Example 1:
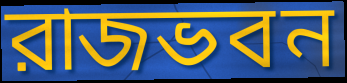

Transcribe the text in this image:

রাজভবন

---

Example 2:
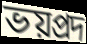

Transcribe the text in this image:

ভয়প্রদ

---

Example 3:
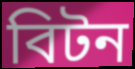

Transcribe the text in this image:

বিটন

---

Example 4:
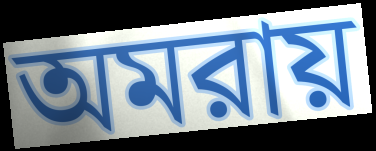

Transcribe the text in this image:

অমরায়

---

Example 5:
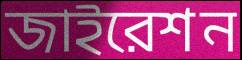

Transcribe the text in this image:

জাইরেশন